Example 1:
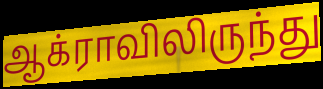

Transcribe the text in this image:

ஆக்ராவிலிருந்து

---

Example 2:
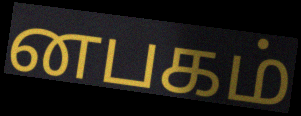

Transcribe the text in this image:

னபகம்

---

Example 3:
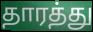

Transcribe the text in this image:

தாரத்து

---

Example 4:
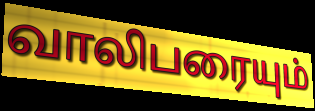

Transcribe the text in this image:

வாலிபரையும்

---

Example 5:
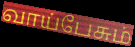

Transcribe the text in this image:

வாய்பேசும்